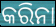
କରିନା